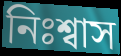
নিঃশ্বাস